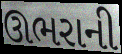
ઊભરાની